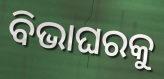
ବିଭାଘରକୁ